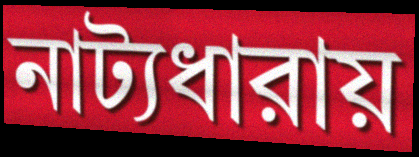
নাট্যধারায়